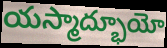
యస్మాద్భూయో